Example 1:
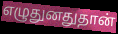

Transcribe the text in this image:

எழுதுனதுதான்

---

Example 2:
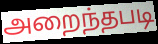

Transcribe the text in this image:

அறைந்தபடி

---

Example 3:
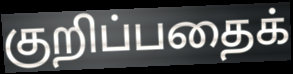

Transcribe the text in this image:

குறிப்பதைக்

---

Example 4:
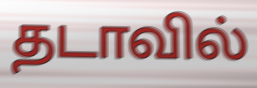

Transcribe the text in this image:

தடாவில்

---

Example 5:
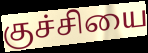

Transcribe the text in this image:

குச்சியை